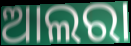
ଆଲରା